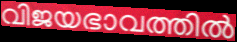
വിജയഭാവത്തിൽ